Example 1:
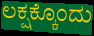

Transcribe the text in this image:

ಲಕ್ಷಕ್ಕೊಂದು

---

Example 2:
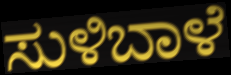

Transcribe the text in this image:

ಸುಳಿಬಾಳೆ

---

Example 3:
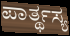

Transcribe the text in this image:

ಪಾರ್ತ್ಥಸ್ಯ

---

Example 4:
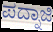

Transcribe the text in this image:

ಪದ್ನಾಜಿ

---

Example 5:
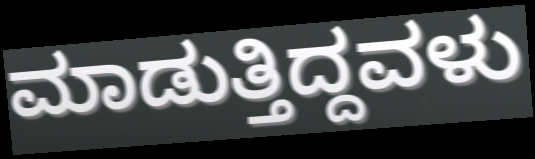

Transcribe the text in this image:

ಮಾಡುತ್ತಿದ್ದವಳು